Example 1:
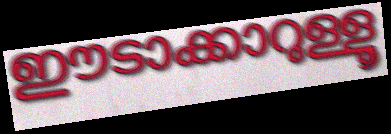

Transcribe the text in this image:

ഈടാക്കാറുള്ളൂ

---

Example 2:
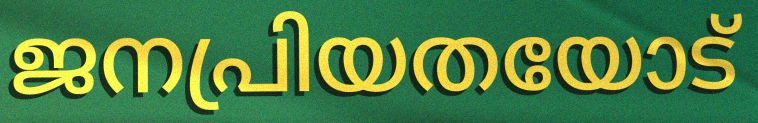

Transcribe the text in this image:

ജനപ്രിയതയോട്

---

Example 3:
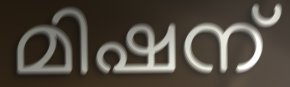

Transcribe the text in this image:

മിഷന്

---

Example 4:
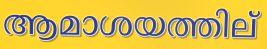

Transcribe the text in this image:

ആമാശയത്തില്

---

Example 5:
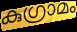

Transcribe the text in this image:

കുഗ്രാമം